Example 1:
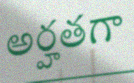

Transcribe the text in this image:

అర్హతగా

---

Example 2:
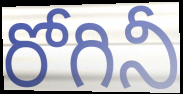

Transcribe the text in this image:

రోగినీ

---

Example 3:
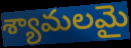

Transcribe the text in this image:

శ్యామలమై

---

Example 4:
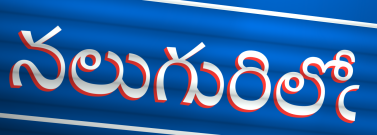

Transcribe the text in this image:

నలుగురిలోఁ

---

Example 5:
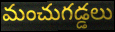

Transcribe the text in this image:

మంచుగడ్డలు